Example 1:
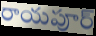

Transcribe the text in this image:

రాయపూర్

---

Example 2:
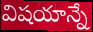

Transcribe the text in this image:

విషయాన్నే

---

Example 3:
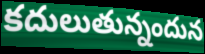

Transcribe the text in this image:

కదులుతున్నందున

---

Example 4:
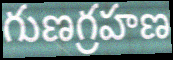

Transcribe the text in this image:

గుణగ్రహణ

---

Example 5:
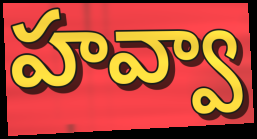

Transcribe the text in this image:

హవ్వా